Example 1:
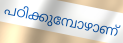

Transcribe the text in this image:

പഠിക്കുമ്പോഴാണ്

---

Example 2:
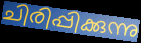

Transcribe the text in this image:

ചിരിപ്പിക്കുന്നു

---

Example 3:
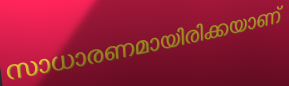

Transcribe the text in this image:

സാധാരണമായിരിക്കയാണ്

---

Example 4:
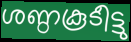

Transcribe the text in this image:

ശണ്ഠകൂടീട്ടു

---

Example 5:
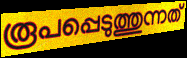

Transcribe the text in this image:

രൂപപ്പെടുത്തുന്നത്